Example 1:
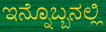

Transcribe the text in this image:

ಇನ್ನೊಬ್ಬನಲ್ಲಿ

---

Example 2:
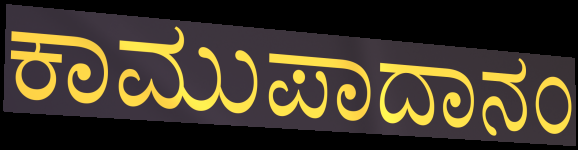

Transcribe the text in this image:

ಕಾಮುಪಾದಾನಂ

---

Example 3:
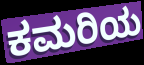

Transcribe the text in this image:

ಕಮರಿಯ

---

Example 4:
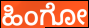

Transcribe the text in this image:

ಹಿಂಗೋ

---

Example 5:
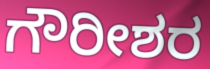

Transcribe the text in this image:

ಗೌರೀಶರ